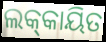
ଲକ୍‌କାୟିତ